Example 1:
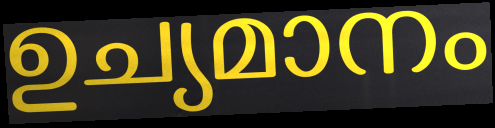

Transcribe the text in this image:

ഉച്യമാനം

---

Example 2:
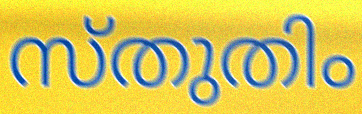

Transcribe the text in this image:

സ്തുതിം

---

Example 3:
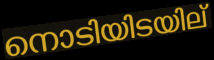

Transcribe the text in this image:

നൊടിയിടയില്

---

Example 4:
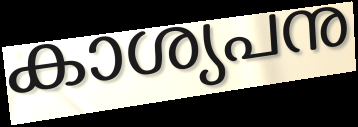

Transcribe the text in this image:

കാശ്യപനു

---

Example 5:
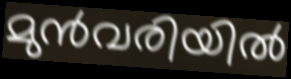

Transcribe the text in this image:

മുൻവരിയിൽ